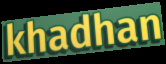
khadhan